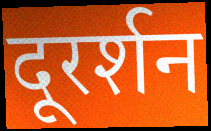
दूरर्शन